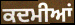
ਕਦਮੀਆਂ